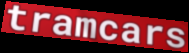
tramcars